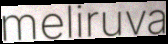
meliruva